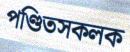
পণ্ডিতসকলক